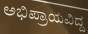
ಅಭಿಪ್ರಾಯವಿದ್ದ